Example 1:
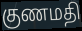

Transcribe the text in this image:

குணமதி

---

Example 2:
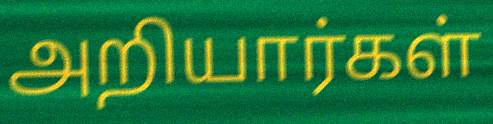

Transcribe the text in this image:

அறியார்கள்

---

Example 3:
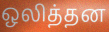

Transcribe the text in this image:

ஒலித்தன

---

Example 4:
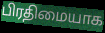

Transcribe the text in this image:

பிரதிமையாக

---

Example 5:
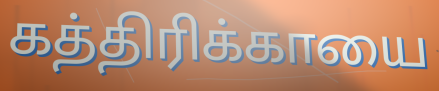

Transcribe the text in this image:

கத்திரிக்காயை